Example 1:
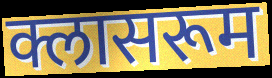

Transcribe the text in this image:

क्लासरूम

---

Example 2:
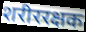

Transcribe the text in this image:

शरीररक्षक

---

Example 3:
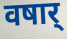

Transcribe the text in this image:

वषार्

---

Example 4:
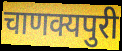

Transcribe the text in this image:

चाणक्यपुरी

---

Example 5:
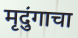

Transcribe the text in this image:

मृदुंगाचा